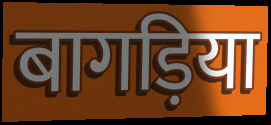
बागड़िया